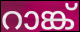
റാങ്ക്